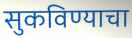
सुकविण्याचा